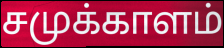
சமுக்காளம்